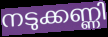
നടുക്കണ്ണി